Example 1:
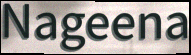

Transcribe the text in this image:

Nageena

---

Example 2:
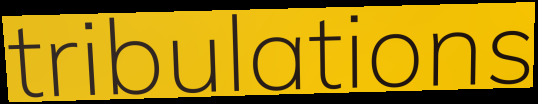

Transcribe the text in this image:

tribulations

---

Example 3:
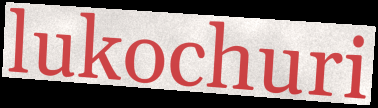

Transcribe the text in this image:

lukochuri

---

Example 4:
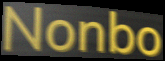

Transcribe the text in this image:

Nonbo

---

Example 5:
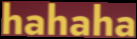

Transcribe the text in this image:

hahaha